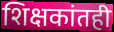
शिक्षकांतही